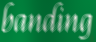
banding